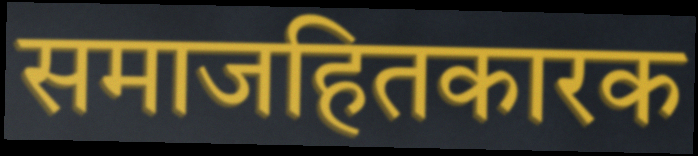
समाजहितकारक